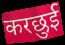
करछुई